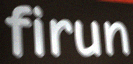
firun